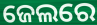
ଜେଲରେ